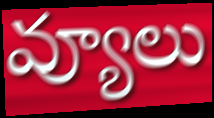
వ్యూలు